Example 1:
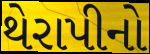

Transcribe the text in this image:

થેરાપીનો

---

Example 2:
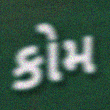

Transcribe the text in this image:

કોમ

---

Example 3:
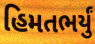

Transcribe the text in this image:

હિમતભર્યું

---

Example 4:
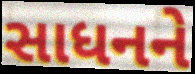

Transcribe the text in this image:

સાધનને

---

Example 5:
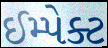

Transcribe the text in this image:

ઈમ્પેક્ટ